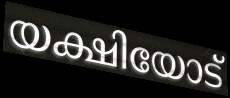
യക്ഷിയോട്